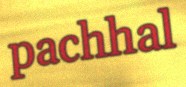
pachhal